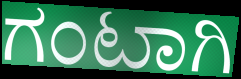
ಗಂಟಾಗಿ